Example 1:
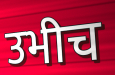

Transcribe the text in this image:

उभीच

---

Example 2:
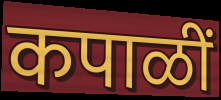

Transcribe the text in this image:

कपाळीं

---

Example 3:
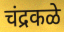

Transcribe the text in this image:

चंद्रकळे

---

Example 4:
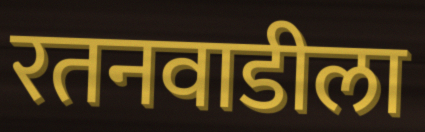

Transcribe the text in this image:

रतनवाडीला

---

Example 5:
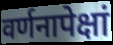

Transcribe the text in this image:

वर्णनापेक्षां